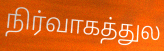
நிர்வாகத்துல